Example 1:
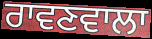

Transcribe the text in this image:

ਰਾਵਣਵਾਲਾ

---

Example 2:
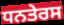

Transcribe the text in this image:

ਧਨਤੇਰਸ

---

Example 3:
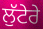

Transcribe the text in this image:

ਲੁੱਟੇਰੇ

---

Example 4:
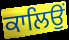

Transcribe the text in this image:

ਕਾਲਿਉਂ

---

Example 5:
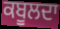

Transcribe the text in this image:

ਕਬੂਲਦਾ